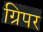
ग्रिपर